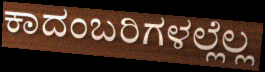
ಕಾದಂಬರಿಗಳಲ್ಲೆಲ್ಲ